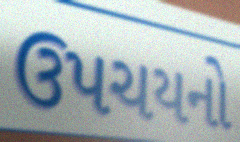
ઉપચયનો